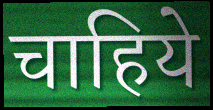
चाहिये